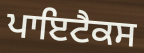
ਪਾਇਟੈਕਸ